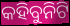
କହିବୁନିଟି